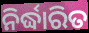
ନିର୍ଦ୍ଧାରିତ